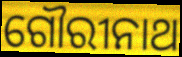
ଗୌରୀନାଥ